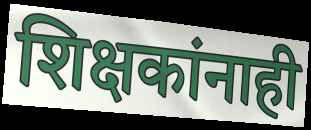
शिक्षकांनाही